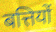
बत्तियों